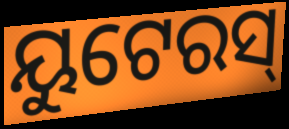
ୟୁଟେରସ୍